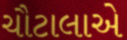
ચૌટાલાએ